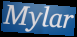
Mylar